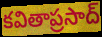
కవితాప్రసాద్